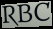
RBC